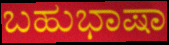
ಬಹುಭಾಷಾ